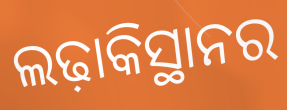
ଲଢ଼ାକିସ୍ଥାନର